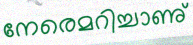
നേരെമറിച്ചാണു്